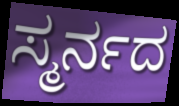
ಸ್ಮರ್ನದ